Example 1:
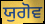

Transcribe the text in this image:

ਯੁਗੋਵ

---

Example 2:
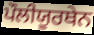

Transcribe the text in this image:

ਪੌਲੀਯੂਰਥੇਨ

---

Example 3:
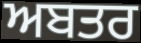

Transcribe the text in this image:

ਅਬਤਰ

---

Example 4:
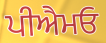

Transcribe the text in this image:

ਪੀਐਮਓ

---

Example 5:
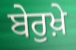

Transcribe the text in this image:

ਬੇਰੁਖ਼ੇ